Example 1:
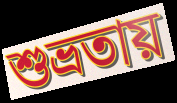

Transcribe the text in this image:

শুভ্রতায়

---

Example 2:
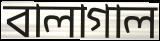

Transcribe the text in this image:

বালাগাল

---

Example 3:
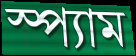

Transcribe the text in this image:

স্প্যাম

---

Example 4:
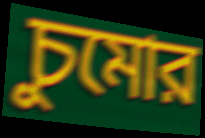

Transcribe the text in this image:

চুমোর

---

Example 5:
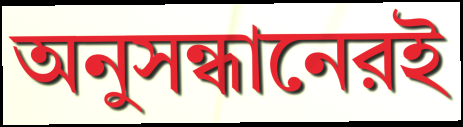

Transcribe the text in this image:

অনুসন্ধানেরই